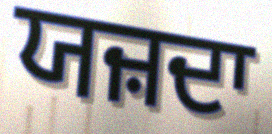
ਯਜ਼ਦਾ